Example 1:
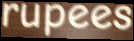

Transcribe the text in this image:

rupees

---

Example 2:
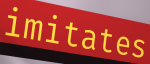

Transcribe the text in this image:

imitates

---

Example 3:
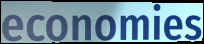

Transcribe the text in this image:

economies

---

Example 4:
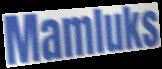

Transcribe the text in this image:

Mamluks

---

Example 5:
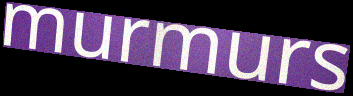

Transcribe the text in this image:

murmurs